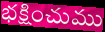
భక్షించుము